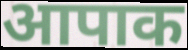
आपाक